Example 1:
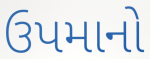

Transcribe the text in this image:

ઉપમાનો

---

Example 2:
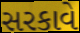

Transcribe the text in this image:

સરકાવે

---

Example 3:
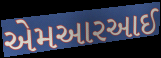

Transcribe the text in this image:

એમઆરઆઈ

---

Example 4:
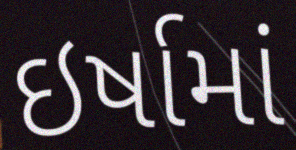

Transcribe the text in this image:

ઇર્ષામાં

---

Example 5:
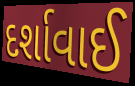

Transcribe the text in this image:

દર્શાવાઈ